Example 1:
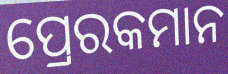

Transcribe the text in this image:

ପ୍ରେରକମାନ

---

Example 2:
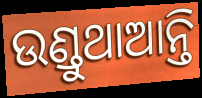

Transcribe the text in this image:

ଉଣ୍ଡୁଥାଆନ୍ତି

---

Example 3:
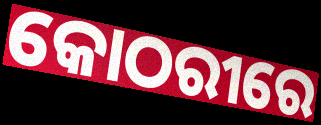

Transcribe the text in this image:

କୋଠରୀରେ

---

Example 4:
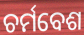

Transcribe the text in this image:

ଚର୍ମବେଶ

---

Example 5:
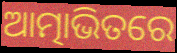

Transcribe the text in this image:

ଆତ୍ମାଭିତରେ